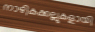
നാഴികക്കല്ലുകളായി